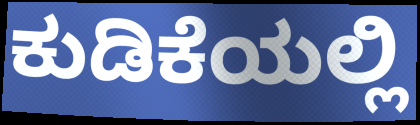
ಕುಡಿಕೆಯಲ್ಲಿ